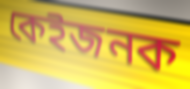
কেইজনক